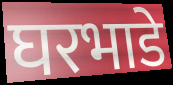
घरभाडे